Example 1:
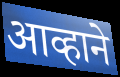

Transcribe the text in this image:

आव्हाने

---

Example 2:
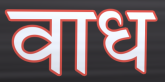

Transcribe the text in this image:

वाध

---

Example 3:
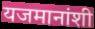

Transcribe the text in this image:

यजमानांशी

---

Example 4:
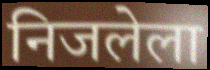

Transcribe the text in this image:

निजलेला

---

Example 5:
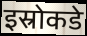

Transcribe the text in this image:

इस्रोकडे